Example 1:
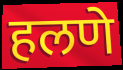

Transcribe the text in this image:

हलणे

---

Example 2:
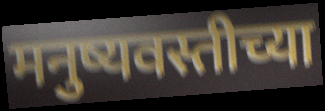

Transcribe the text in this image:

मनुष्यवस्तीच्या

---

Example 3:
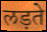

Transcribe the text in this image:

लड़ते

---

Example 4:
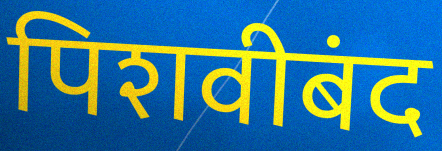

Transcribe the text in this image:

पिशवीबंद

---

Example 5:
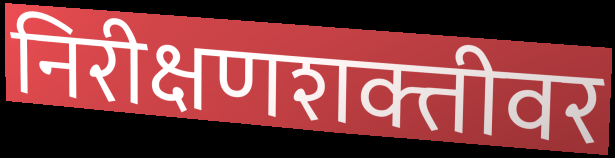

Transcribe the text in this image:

निरीक्षणशक्तीवर